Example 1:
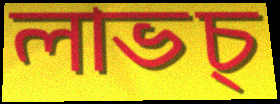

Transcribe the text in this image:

লাভচ্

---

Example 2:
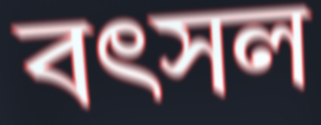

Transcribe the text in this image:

বৎসল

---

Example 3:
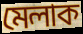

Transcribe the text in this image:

মেলাক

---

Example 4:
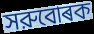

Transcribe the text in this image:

সৰুবোৰক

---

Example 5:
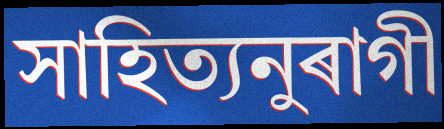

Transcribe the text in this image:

সাহিত্য়নুৰাগী